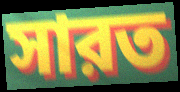
সারত